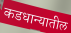
कडधान्यातील